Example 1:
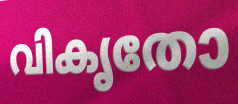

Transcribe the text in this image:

വികൃതോ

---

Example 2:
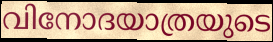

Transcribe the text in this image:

വിനോദയാത്രയുടെ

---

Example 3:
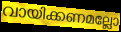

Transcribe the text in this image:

വായിക്കണമല്ലോ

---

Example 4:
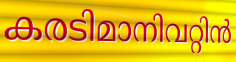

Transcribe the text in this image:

കരടിമാനിവറ്റിൻ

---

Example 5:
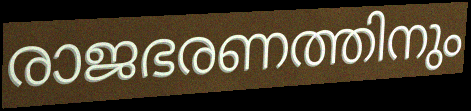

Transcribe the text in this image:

രാജഭരണത്തിനും